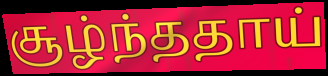
சூழ்ந்ததாய்